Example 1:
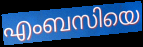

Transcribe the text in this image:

എംബസിയെ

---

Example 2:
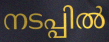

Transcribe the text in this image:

നടപ്പിൽ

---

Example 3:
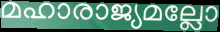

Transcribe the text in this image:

മഹാരാജ്യമല്ലോ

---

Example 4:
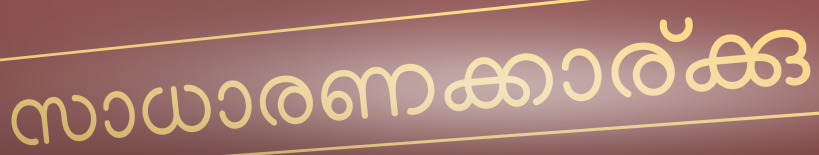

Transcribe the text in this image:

സാധാരണക്കാര്ക്കു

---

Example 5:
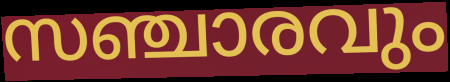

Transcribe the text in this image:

സഞ്ചാരവും